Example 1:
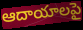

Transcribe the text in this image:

ఆదాయాలపై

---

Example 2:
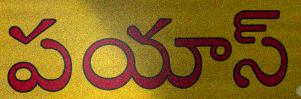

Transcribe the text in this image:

పయాస్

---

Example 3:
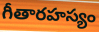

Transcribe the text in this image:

గీతారహస్యం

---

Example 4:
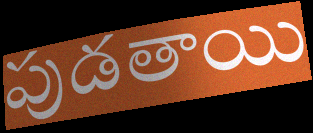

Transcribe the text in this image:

పుడతాయి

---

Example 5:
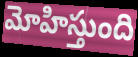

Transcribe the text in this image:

మోహిస్తుంది